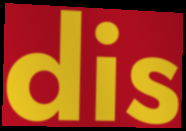
dis